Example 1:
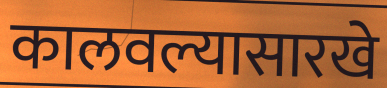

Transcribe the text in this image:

कालवल्यासारखे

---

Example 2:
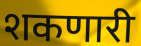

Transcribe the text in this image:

शकणारी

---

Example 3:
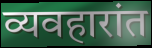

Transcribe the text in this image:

व्यवहारांत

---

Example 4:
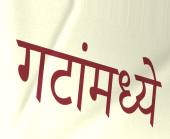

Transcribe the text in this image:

गटांमध्ये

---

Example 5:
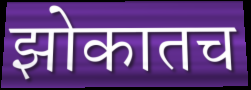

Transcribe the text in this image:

झोकातच